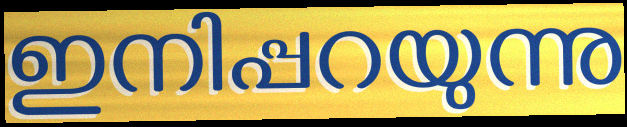
ഇനിപ്പറയുന്നു